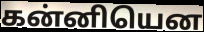
கன்னியென